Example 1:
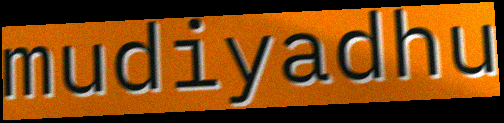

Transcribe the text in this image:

mudiyadhu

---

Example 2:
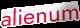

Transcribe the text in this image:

alienum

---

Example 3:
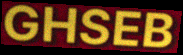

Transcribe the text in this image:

GHSEB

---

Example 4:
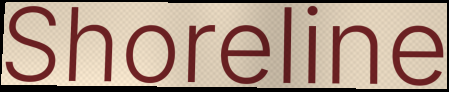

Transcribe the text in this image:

Shoreline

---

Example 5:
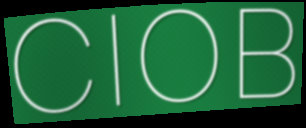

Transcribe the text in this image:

CIOB